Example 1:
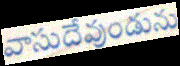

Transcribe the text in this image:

వాసుదేవుండును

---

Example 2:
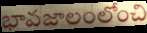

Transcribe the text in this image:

భావజాలంలోంచి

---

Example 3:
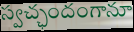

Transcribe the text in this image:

స్వచ్ఛందంగానూ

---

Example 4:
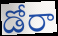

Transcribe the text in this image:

డోరా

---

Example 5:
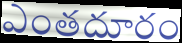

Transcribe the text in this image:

ఎంతదూరం